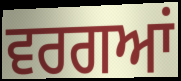
ਵਰਗਆਂ